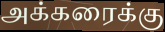
அக்கரைக்கு